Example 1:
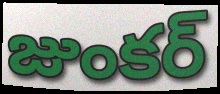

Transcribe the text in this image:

జుంకర్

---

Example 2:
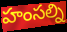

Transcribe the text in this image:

హంసల్ని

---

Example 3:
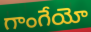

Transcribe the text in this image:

గాంగేయో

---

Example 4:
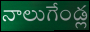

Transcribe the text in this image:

నాలుగేండ్ల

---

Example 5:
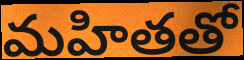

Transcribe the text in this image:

మహితతో